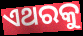
ଏଥରକୁ